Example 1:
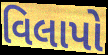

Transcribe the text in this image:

વિલાપો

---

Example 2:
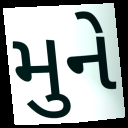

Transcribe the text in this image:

મુને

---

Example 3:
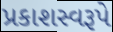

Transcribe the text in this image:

પ્રકાશસ્વરૂપે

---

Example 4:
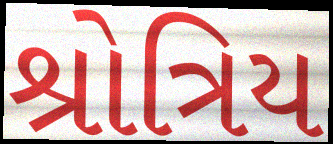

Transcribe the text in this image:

શ્રોત્રિય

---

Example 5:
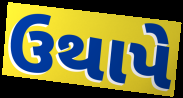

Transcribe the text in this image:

ઉથાપે